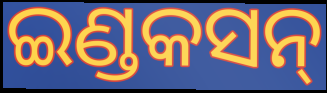
ଇଣ୍ଡକସନ୍